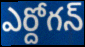
ఎర్దోగన్